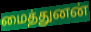
மைத்துனன்